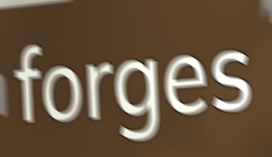
forges